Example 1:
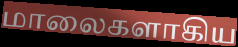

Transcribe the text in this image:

மாலைகளாகிய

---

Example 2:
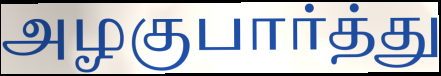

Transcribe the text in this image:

அழகுபார்த்து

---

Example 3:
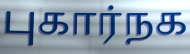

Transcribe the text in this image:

புகார்நக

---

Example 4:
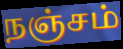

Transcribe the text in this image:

நஞ்சம்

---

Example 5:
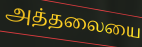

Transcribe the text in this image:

அத்தலையை